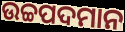
ଉଚ୍ଚପଦମାନ